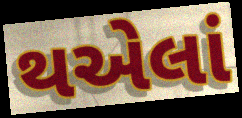
થએલાં